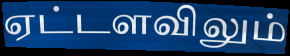
ஏட்டளவிலும்